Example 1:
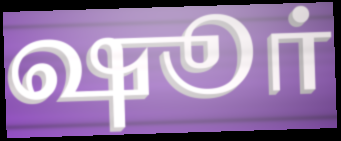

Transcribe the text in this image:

ஷூர்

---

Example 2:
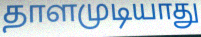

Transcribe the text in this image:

தாளமுடியாது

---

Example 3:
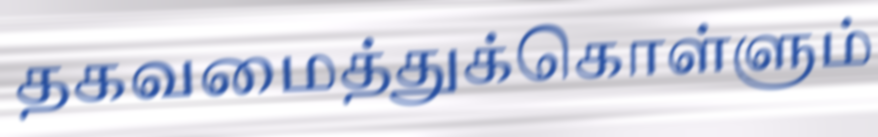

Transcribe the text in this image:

தகவமைத்துக்கொள்ளும்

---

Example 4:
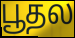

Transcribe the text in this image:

பூதல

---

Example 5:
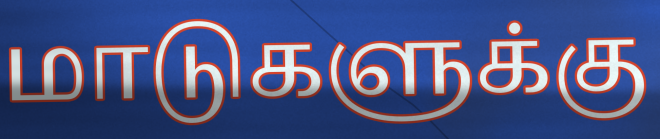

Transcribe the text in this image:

மாடுகளுக்கு